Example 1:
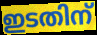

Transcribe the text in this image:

ഇടതിന്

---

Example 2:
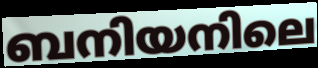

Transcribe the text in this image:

ബനിയനിലെ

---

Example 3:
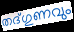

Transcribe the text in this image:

തദ്ഗുണവും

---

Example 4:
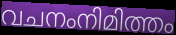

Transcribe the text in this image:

വചനംനിമിത്തം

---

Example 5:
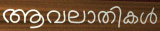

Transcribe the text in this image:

ആവലാതികൾ